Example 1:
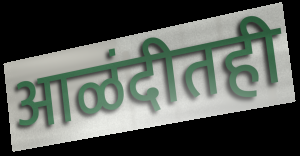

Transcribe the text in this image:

आळंदीतही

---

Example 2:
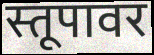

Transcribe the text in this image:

स्तूपावर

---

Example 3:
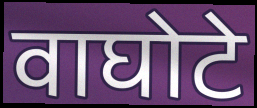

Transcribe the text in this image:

वाघोटे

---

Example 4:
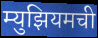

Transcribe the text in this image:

म्युझियमची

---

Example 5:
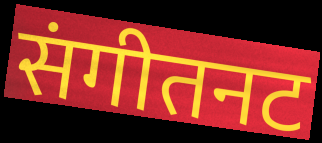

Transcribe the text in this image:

संगीतनट